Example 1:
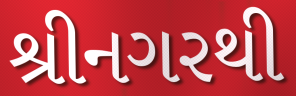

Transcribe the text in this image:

શ્રીનગરથી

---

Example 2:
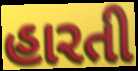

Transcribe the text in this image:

હારતી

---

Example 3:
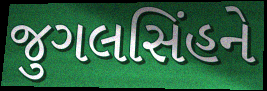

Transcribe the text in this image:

જુગલસિંહને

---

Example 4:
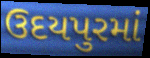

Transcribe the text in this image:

ઉદયપુરમાં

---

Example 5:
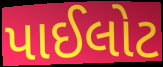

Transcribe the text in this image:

પાઈલોટ